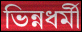
ভিন্নধর্মী